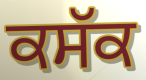
ਕਸੱਕ